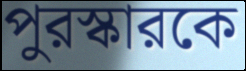
পুরস্কারকে